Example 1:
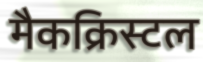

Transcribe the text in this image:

मैकक्रिस्टल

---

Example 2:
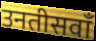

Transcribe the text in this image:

उनतीसवाँ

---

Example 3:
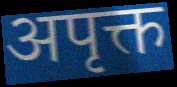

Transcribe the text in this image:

अपृक्त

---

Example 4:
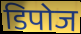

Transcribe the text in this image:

डिपोज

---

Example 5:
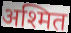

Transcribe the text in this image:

अश्मित